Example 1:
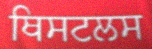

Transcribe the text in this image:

ਥਿਸਟਲਸ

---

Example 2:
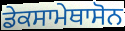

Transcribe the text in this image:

ਡੇਕਸਾਮੇਥਾਸੋਨ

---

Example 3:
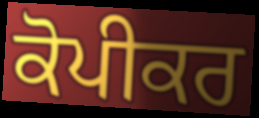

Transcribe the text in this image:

ਕੋਪੀਕਰ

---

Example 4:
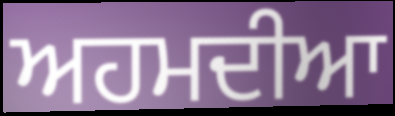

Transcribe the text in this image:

ਅਹਮਦੀਆ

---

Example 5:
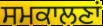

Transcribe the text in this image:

ਸਮਕਾਲਣਾਂ